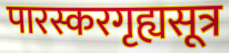
पारस्करगृह्यसूत्र